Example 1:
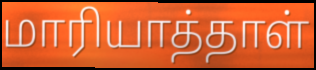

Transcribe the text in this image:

மாரியாத்தாள்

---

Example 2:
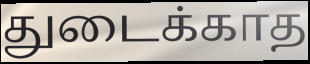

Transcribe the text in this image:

துடைக்காத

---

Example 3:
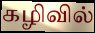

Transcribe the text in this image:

கழிவில்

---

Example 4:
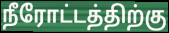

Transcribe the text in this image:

நீரோட்டத்திற்கு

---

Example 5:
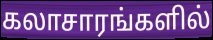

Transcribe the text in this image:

கலாசாரங்களில்